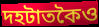
দহটাতকৈও